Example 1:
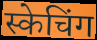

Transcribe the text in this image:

स्केचिंग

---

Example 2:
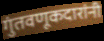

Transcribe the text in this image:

गुंतवणूकदारांनी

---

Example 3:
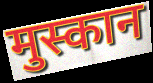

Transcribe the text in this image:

मुस्कान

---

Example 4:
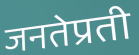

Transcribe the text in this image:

जनतेप्रती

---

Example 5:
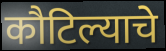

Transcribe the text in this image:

कौटिल्याचे